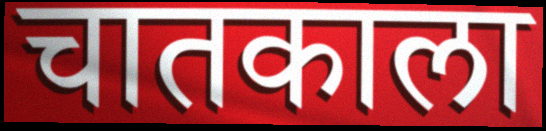
चातकाला